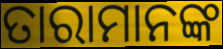
ତାରାମାନଙ୍କ